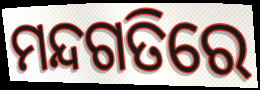
ମନ୍ଦଗତିରେ